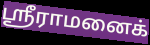
ஸ்ரீராமனைக்